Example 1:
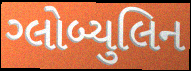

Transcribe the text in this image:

ગ્લોબ્યુલિન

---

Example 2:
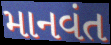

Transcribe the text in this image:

માનવંત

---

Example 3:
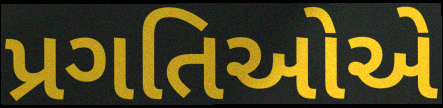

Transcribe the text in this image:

પ્રગતિઓએ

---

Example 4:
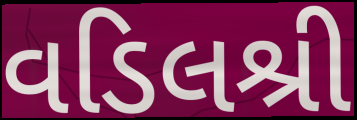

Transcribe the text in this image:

વડિલશ્રી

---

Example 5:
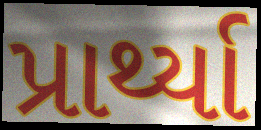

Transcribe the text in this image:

પ્રાર્થ્યા